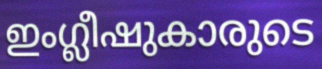
ഇംഗ്ലീഷുകാരുടെ